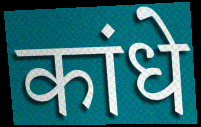
कांधे